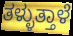
ತಳ್ಳುತ್ತಾಳೆ